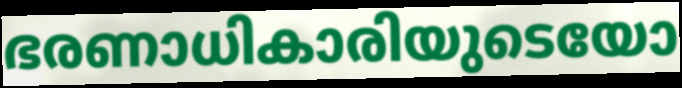
ഭരണാധികാരിയുടെയോ